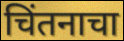
चिंतनाचा